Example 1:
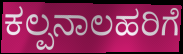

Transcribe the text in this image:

ಕಲ್ಪನಾಲಹರಿಗೆ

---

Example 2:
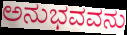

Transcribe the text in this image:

ಅನುಭವವನು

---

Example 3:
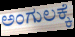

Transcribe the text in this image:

ಅಂಗುಲಕ್ಕೆ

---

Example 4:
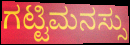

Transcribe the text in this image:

ಗಟ್ಟಿಮನಸ್ಸು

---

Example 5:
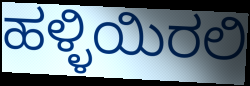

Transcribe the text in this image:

ಹಳ್ಳಿಯಿರಲಿ